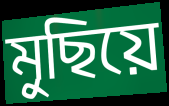
মুছিয়ে